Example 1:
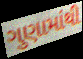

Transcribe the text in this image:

ગુણામાંથી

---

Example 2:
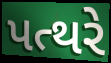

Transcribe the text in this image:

પત્થરે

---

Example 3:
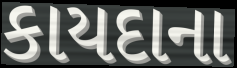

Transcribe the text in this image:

કાયદાના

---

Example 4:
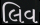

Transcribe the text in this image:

લિવ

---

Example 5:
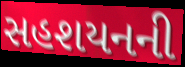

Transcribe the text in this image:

સહશયનની